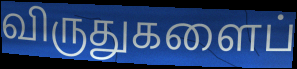
விருதுகளைப்